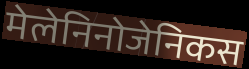
मेलेनिनोजेनिकस